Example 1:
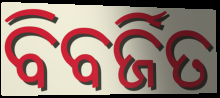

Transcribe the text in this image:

ବିବର୍ଜିତ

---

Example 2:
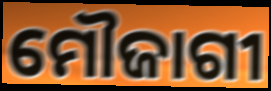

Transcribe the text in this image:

ମୌଜାଗୀ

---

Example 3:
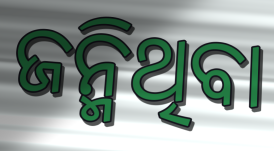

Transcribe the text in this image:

ଜନ୍ମିଥିବା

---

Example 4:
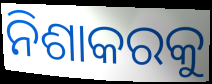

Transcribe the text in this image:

ନିଶାକରକୁ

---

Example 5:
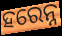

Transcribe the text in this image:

ହରେନ୍ନ